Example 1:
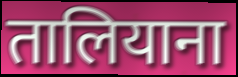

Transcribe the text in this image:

तालियाना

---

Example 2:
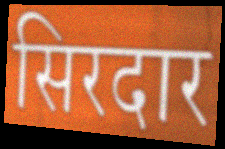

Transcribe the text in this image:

सिरदार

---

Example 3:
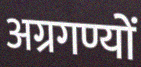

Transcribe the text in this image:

अग्रगण्यों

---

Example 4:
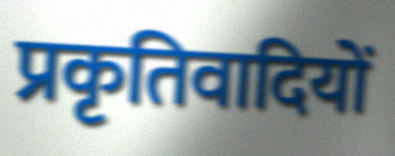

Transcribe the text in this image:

प्रकृतिवादियों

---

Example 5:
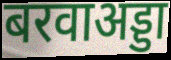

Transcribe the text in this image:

बरवाअड्डा